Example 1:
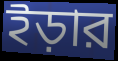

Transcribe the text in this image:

ইড়ার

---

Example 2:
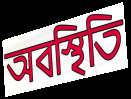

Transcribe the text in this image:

অবস্থিতি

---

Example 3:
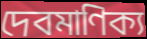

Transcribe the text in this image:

দেবমাণিক্য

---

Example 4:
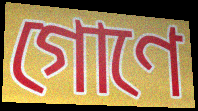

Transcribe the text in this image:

গোণে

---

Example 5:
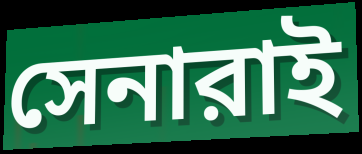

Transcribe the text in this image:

সেনারাই